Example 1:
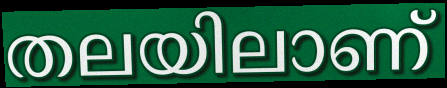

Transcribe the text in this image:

തലയിലാണ്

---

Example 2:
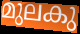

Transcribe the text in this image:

മുലകു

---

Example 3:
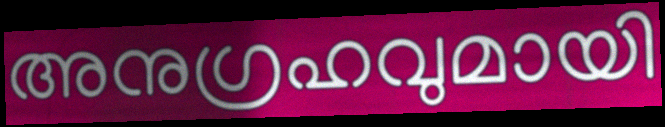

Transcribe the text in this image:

അനുഗ്രഹവുമായി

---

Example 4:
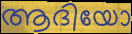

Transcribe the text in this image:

ആദിയോ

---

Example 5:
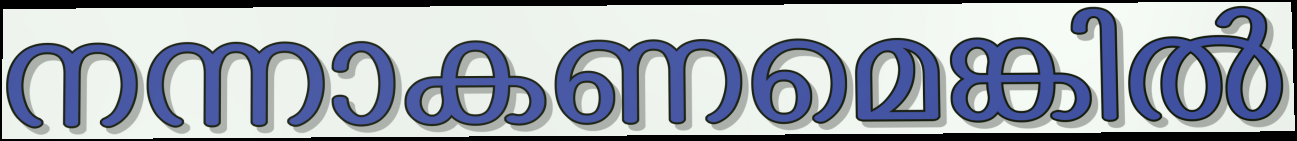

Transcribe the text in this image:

നന്നാകണമെങ്കിൽ